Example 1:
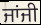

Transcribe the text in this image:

ਜਾਂਜੀ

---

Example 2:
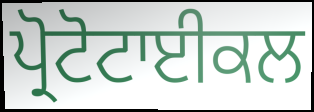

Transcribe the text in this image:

ਪ੍ਰੋਟੋਟਾਈਕਲ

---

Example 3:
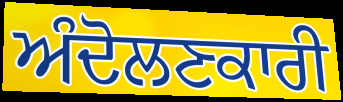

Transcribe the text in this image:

ਅੰਦੋਲਣਕਾਰੀ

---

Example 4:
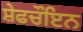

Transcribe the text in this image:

ਸ਼ੇਫਚੌਇਨ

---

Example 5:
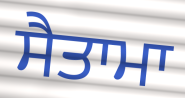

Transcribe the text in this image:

ਸੈਤਾਮਾ